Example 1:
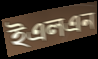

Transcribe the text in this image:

ইএলএন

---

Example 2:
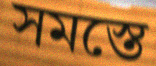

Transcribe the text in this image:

সমস্তে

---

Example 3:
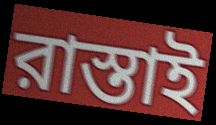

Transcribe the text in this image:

রাস্তাই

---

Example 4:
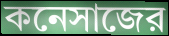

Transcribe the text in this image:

কনেসাজের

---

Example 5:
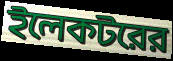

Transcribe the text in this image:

ইলেকটরের